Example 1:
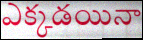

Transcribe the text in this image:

ఎక్కడయినా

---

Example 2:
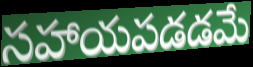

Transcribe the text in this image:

సహాయపడడమే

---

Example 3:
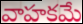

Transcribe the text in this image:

వాహకమే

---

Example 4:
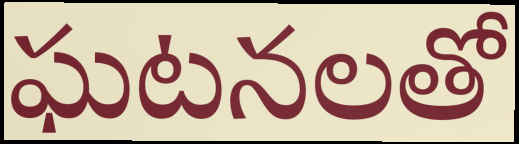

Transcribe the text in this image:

ఘటనలతో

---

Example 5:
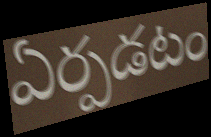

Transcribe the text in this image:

ఏర్పడటం